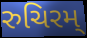
રુચિરમ્